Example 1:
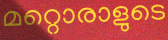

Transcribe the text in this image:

മറ്റൊരാളുടെ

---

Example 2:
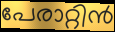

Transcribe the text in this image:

പേരാറ്റിൻ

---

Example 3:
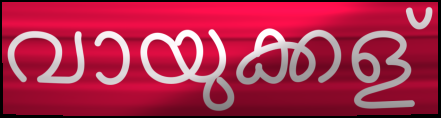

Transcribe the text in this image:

വായുക്കള്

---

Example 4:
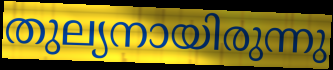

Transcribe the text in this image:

തുല്യനായിരുന്നു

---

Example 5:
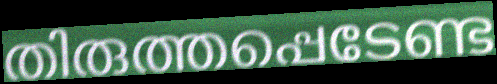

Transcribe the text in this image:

തിരുത്തപ്പെടേണ്ട